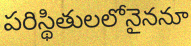
పరిస్థితులలోనైననూ